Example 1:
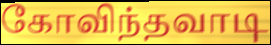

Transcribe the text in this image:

கோவிந்தவாடி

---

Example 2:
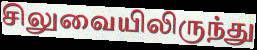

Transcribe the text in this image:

சிலுவையிலிருந்து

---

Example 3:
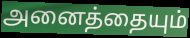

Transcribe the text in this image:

அனைத்தையும்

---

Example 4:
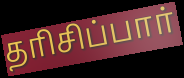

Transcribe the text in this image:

தரிசிப்பார்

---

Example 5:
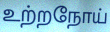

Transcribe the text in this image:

உற்றநோய்